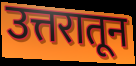
उत्तरातून